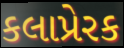
કલાપ્રેરક